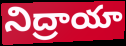
నిద్రాయా